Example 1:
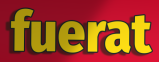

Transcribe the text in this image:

fuerat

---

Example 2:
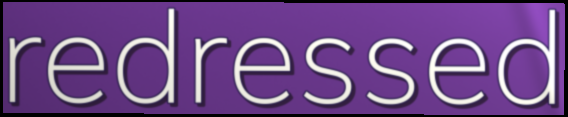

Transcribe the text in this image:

redressed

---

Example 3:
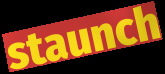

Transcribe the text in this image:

staunch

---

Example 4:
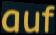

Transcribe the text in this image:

auf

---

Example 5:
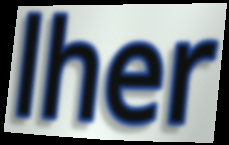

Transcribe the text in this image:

lher